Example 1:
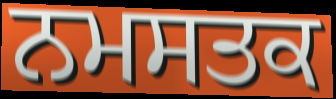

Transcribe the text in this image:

ਨਮਸਤਕ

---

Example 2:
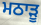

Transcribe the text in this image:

ਮਠਾੜੂ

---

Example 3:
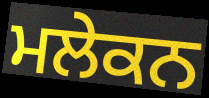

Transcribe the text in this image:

ਮਲੇਕਨ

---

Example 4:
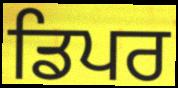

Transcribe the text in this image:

ਡਿਪਰ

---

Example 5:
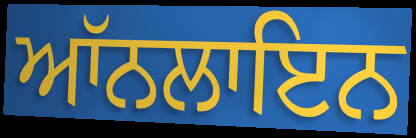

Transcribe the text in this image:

ਆੱਨਲਾਇਨ